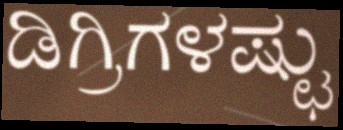
ಡಿಗ್ರಿಗಳಷ್ಟು